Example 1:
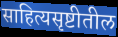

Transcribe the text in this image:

साहित्यसृष्टीतील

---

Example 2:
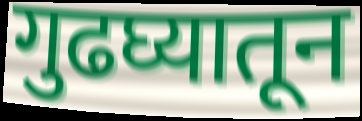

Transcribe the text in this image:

गुढघ्यातून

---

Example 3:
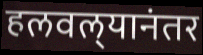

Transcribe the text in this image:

हलवल्यानंतर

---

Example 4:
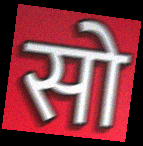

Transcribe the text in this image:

सो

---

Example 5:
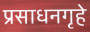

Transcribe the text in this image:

प्रसाधनगृहे